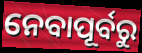
ନେବାପୂର୍ବରୁ